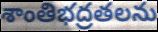
శాంతిభద్రతలను